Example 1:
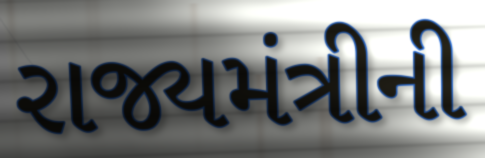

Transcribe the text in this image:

રાજ્યમંત્રીની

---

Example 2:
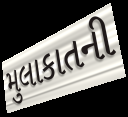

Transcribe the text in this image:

મુલાકાતની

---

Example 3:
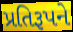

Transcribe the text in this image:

પ્રતિરૂપને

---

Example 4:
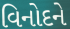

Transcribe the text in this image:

વિનોદને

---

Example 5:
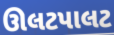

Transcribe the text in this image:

ઊલટપાલટ